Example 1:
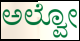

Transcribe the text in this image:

ಅಲ್ವೋ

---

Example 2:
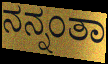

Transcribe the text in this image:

ನನ್ನಂತಾ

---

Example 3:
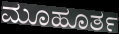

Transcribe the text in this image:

ಮೂಹೂರ್ತ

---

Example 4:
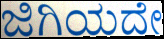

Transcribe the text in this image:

ಜಿಗಿಯದೇ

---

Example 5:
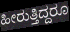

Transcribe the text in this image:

ಹೀರುತ್ತಿದ್ದರೂ